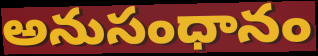
అనుసంధానం